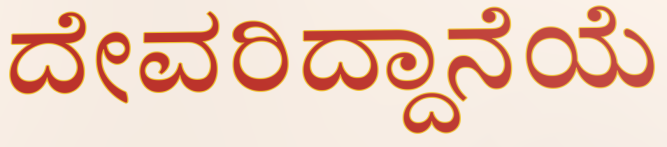
ದೇವರಿದ್ದಾನೆಯೆ